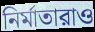
নির্মাতারাও